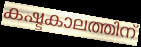
കഷ്ടകാലത്തിന്